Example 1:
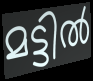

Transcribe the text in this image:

മട്ടിൽ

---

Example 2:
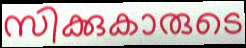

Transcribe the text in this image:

സിക്കുകാരുടെ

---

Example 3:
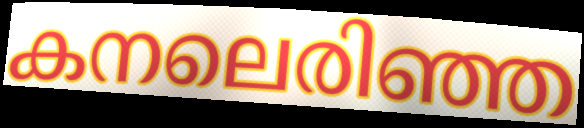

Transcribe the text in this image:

കനലെരിഞ്ഞ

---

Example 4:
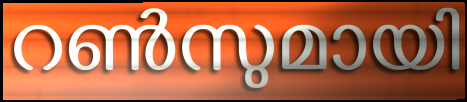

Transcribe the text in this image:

റൺസുമായി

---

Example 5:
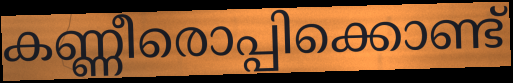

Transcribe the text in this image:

കണ്ണീരൊപ്പിക്കൊണ്ട്